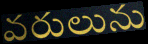
వరులును